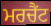
ਮਰਚੈਂਟ